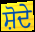
ਸ਼ੋਦੇ